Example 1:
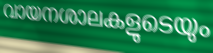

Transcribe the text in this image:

വായനശാലകളുടെയും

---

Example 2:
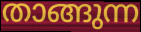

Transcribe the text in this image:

താങ്ങുന്ന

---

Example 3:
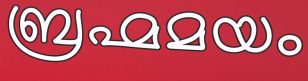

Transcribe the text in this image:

ബ്രഹ്മമയം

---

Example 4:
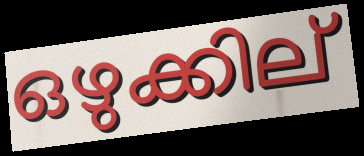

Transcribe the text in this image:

ഒഴുക്കില്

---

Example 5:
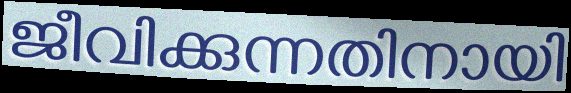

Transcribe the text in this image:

ജീവിക്കുന്നതിനായി